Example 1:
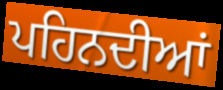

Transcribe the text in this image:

ਪਹਿਨਦੀਆਂ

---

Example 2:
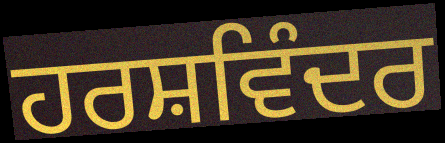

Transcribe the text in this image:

ਹਰਸ਼ਵਿੰਦਰ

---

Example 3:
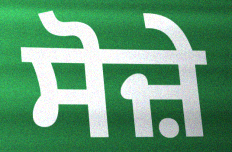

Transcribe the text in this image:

ਸੋਜ਼ੇ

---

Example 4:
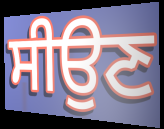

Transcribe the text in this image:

ਸੀਉਣ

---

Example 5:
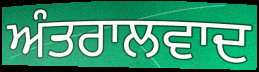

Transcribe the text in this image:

ਅੰਤਰਾਲਵਾਦ